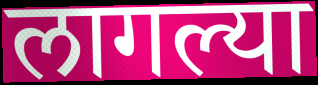
लागल्या